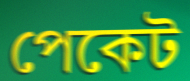
পেকেট